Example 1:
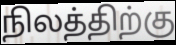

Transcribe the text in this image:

நிலத்திற்கு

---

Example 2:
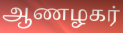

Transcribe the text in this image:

ஆணழகர்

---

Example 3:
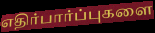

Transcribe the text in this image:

எதிர்பார்ப்புகளை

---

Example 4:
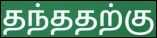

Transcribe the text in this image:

தந்ததற்கு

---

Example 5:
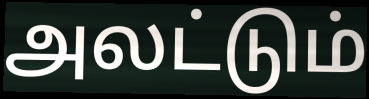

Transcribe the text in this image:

அலட்டும்